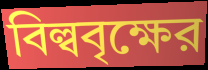
বিল্ববৃক্ষের